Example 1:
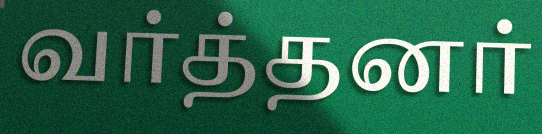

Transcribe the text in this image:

வர்த்தனர்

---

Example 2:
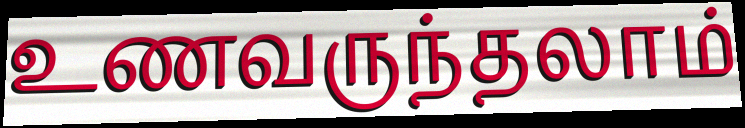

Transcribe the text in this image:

உணவருந்தலாம்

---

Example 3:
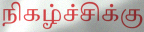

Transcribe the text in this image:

நிகழ்ச்சிக்கு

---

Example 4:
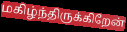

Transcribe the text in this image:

மகிழ்ந்திருக்கிறேன்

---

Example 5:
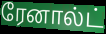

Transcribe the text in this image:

ரேனால்ட்